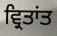
ਵ੍ਰਿਤਾਂਤ